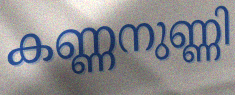
കണ്ണനുണ്ണി